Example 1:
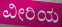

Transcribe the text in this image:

ವೀರಿಯ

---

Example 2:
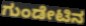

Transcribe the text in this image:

ಗುಂಡೇಟಿನ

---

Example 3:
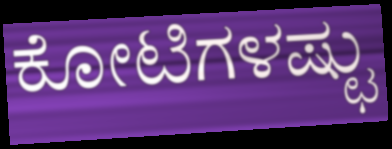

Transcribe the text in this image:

ಕೋಟಿಗಳಷ್ಟು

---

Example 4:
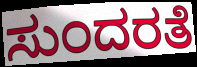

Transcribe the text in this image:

ಸುಂದರತೆ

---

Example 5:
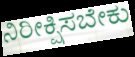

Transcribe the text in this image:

ನಿರೀಕ್ಷಿಸಬೇಕು